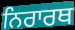
ਨਿਰਾਰਥ